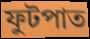
ফুটপাত